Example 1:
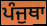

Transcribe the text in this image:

ਪੰਜੁਥਾ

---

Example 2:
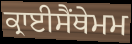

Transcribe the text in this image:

ਕ੍ਰਾਈਸੈਂਥੇਮਮ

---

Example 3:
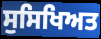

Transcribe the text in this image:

ਸੁਸਿਖਿਅਤ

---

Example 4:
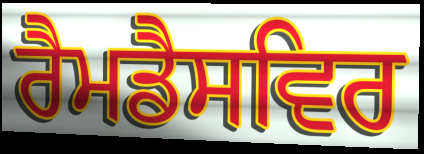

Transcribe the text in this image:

ਰੈਮਡੈਸਵਿਰ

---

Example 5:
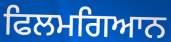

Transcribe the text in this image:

ਫਿਲਮਗਿਆਨ